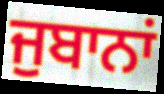
ਜੁਬਾਨਾਂ